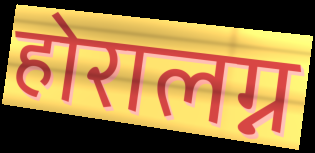
होरालग्न